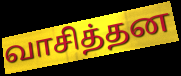
வாசித்தன